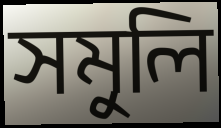
সমুলি